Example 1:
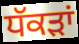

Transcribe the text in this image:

ਧੱਕੜਾਂ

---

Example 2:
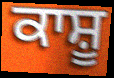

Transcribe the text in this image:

ਕਾਸ਼ੂ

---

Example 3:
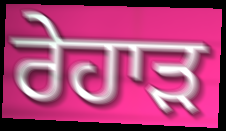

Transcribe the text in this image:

ਰੇਹਾੜ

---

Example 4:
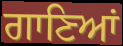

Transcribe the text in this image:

ਗਾਣਿਆਂ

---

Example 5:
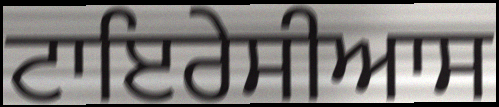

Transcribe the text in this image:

ਟਾਇਰੇਸੀਆਸ